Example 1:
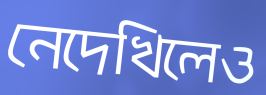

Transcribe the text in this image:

নেদেখিলেও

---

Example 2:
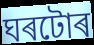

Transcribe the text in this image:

ঘৰটোৰ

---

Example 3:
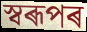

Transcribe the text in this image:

স্বৰূপৰ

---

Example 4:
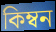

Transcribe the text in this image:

কিম্বন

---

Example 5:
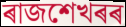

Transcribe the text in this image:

ৰাজশেখৰৰ